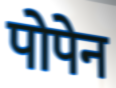
पोपेन